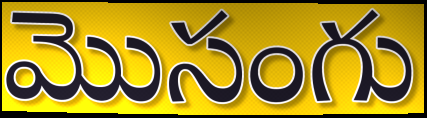
మొసంగు